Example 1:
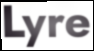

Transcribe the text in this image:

Lyre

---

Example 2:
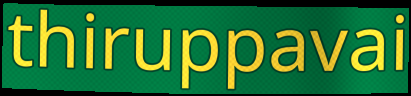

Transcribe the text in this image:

thiruppavai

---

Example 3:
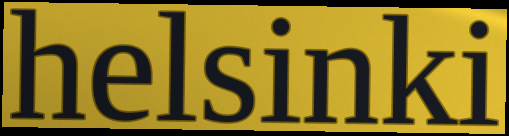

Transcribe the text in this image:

helsinki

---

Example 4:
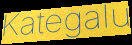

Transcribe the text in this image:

Kategalu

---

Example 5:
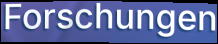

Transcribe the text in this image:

Forschungen